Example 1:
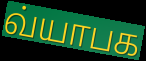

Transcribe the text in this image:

வ்யாபக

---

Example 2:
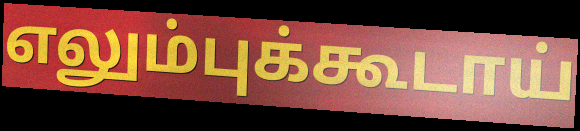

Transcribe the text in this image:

எலும்புக்கூடாய்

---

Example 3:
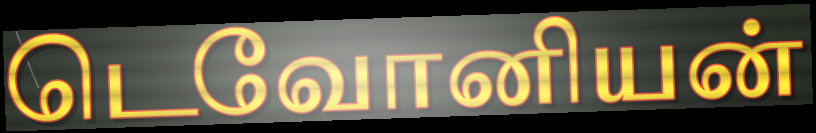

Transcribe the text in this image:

டெவோனியன்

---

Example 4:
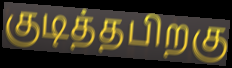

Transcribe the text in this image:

குடித்தபிறகு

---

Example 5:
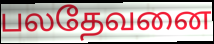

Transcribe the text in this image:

பலதேவனை